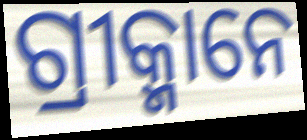
ଗ୍ରୀକ୍ମାନେ